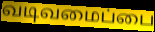
வடிவமைப்பை